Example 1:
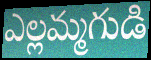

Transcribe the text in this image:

ఎల్లమ్మగుడి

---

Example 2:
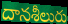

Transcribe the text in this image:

దానశీలురు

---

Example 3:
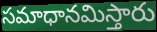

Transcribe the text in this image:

సమాధానమిస్తారు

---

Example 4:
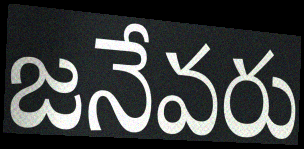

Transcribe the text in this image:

జనేవరు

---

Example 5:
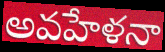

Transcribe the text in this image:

అవహేళనా